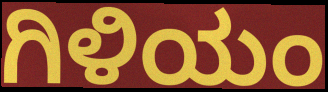
ಗಿಳಿಯಂ